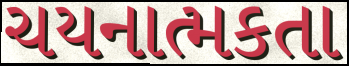
ચયનાત્મકતા